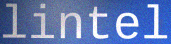
lintel